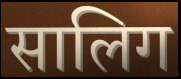
सालिग